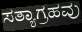
ಸತ್ಯಾಗ್ರಹವು